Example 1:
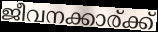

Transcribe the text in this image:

ജീവനക്കാര്ക്ക്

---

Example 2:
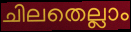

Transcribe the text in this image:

ചിലതെല്ലാം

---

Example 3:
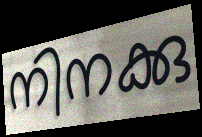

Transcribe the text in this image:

നിനക്കു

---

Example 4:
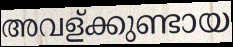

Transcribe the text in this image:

അവള്ക്കുണ്ടായ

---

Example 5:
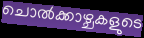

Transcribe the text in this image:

ചൊൽക്കാഴ്ചകളുടെ